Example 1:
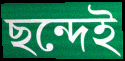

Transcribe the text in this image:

ছন্দেই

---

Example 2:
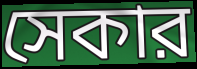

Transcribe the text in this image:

সেকার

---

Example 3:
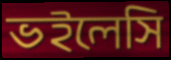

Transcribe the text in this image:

ভইলেসি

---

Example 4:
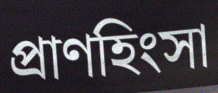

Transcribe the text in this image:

প্রাণহিংসা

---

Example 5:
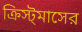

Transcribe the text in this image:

ক্রিস্ট্‌মাসের